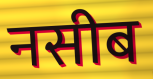
नसीब